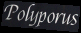
Polyporus